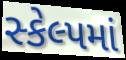
સ્કેલ્પમાં